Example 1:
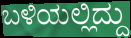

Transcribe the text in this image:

ಬಳಿಯಲ್ಲಿದ್ದು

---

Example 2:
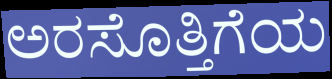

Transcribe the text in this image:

ಅರಸೊತ್ತಿಗೆಯ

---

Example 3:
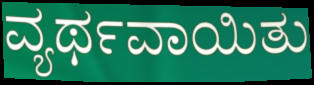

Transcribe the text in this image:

ವ್ಯರ್ಥವಾಯಿತು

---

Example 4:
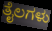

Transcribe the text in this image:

ತೈಲಗಳು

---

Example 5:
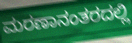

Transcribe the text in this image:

ಮರಣಾನಂತರದಲ್ಲಿ